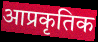
आप्रकृतिक